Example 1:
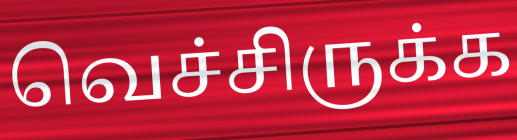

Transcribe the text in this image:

வெச்சிருக்க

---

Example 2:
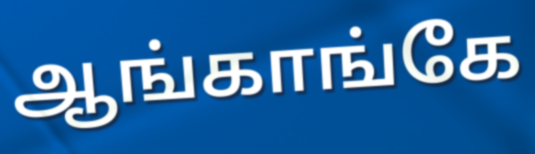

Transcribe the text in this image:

ஆங்காங்கே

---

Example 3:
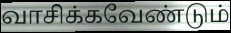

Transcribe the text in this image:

வாசிக்கவேண்டும்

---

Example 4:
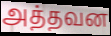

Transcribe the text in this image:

அத்தவன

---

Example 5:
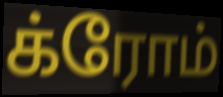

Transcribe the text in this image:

க்ரோம்